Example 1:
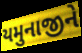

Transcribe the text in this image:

યમુનાજીને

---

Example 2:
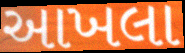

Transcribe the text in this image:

આખલા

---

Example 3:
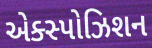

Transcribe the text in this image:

એક્સ્પોઝિશન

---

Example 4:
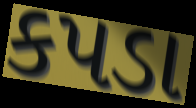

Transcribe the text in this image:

કપડા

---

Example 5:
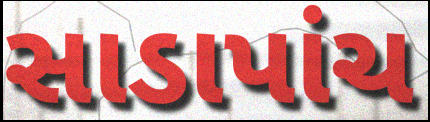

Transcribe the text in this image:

સાડાપાંચ